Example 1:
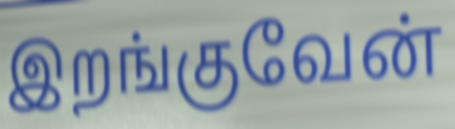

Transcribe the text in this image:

இறங்குவேன்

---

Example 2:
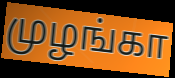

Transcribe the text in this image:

முழங்கா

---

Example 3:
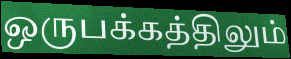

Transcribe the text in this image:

ஒருபக்கத்திலும்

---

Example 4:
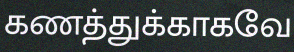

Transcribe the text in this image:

கணத்துக்காகவே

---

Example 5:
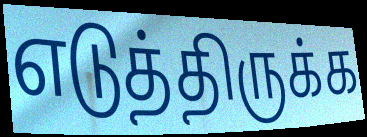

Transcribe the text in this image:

எடுத்திருக்க